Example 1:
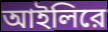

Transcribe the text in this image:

আইলিরে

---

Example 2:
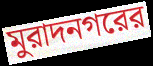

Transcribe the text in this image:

মুরাদনগরের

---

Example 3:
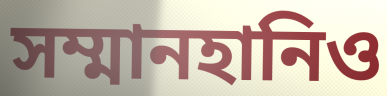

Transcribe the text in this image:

সম্মানহানিও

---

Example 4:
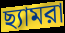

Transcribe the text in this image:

ছ্যামরা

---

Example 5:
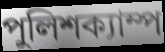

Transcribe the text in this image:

পুলিশক্যাম্প